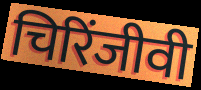
चिरिंजीवी